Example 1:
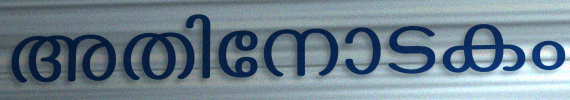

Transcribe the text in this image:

അതിനോടകം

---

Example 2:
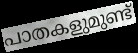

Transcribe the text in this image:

പാതകളുമുണ്ട്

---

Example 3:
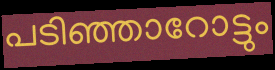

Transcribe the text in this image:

പടിഞ്ഞാറോട്ടും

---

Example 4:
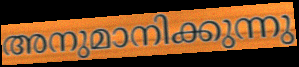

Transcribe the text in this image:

അനുമാനിക്കുന്നു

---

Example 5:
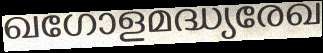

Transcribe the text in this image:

ഖഗോളമദ്ധ്യരേഖ